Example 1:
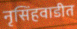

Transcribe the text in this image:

नृसिंहवाडीत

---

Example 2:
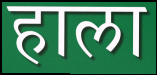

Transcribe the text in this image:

हाला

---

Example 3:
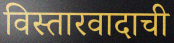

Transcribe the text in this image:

विस्तारवादाची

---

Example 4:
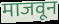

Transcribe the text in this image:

माजवून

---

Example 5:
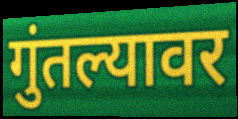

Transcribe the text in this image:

गुंतल्यावर